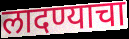
लादण्याचा